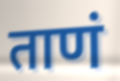
ताणं